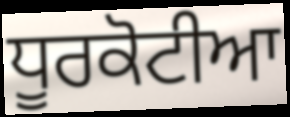
ਧੂਰਕੋਟੀਆ